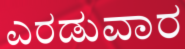
ಎರಡುವಾರ